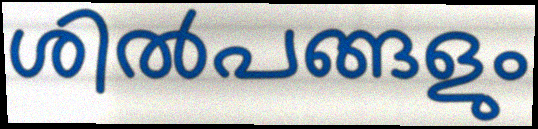
ശിൽപങ്ങളും